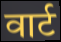
वार्ट